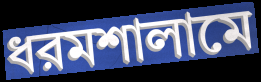
ধরমশালামে